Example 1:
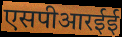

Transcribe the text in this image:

एसपीआरईई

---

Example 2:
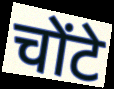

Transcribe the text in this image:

चोंटे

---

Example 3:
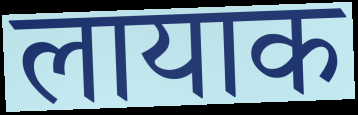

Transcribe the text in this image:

लायाक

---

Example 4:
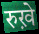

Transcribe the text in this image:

रुख़े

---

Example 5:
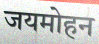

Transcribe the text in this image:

जयमोहन